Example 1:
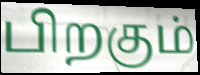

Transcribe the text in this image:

பிறகும்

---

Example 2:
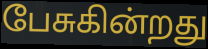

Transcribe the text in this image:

பேசுகின்றது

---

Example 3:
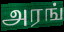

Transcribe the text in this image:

அரங்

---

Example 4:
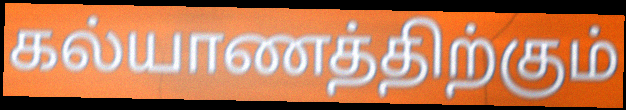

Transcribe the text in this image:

கல்யாணத்திற்கும்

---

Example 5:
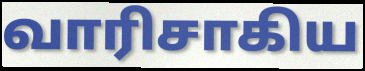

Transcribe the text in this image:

வாரிசாகிய